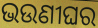
ଭଉଣୀଘର